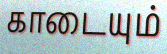
காடையும்